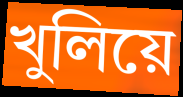
খুলিয়ে